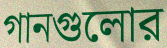
গানগুলোর